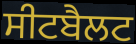
ਸੀਟਬੈਲਟ